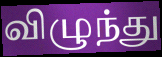
விழுந்து